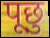
पूछु